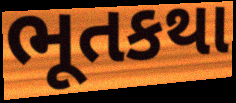
ભૂતકથા